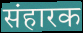
संहारक